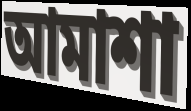
আমাশা